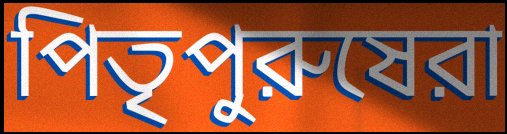
পিতৃপুরুষেরা